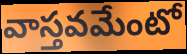
వాస్తవమేంటో